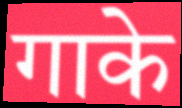
गाके